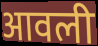
आवली